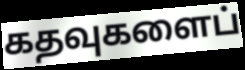
கதவுகளைப்